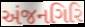
અંજનગિરિ